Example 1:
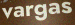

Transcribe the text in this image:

vargas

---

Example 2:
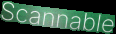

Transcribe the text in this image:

Scannable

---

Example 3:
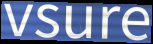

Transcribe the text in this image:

vsure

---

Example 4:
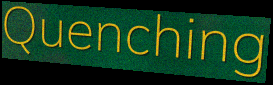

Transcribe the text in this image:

Quenching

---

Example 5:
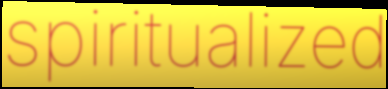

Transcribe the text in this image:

spiritualized